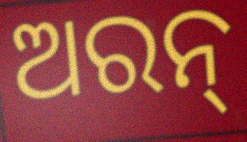
ଅରନ୍